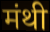
मंथी